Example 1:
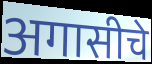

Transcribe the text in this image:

अगासीचे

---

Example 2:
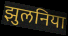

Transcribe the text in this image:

झुलनिया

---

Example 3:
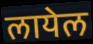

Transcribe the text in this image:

लायेल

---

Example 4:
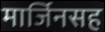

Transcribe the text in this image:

मार्जिनसह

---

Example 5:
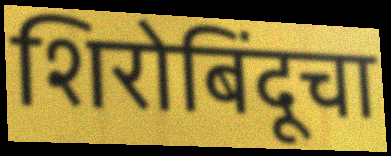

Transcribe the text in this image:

शिरोबिंदूचा